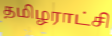
தமிழராட்சி